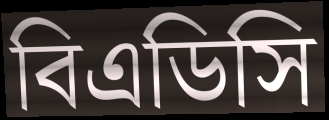
বিএডিসি